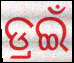
ଡ୍ରଇଁ